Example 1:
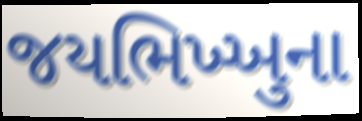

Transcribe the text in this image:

જયભિખ્ખુના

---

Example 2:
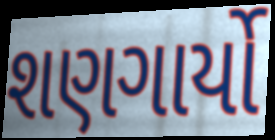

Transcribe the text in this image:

શણગાર્યો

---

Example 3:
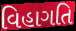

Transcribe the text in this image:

વિહાગતિ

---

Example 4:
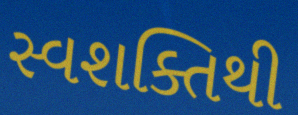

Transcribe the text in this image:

સ્વશક્તિથી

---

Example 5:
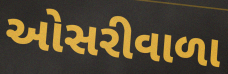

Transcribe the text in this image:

ઓસરીવાળા